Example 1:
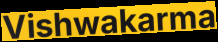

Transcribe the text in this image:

Vishwakarma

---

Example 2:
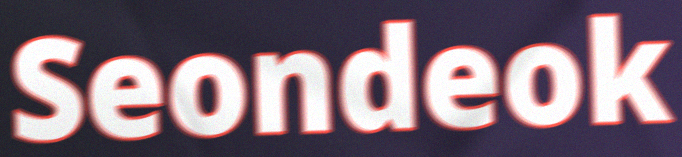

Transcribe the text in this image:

Seondeok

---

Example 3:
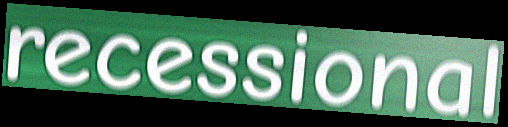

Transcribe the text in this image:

recessional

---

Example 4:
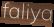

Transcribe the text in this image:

faliya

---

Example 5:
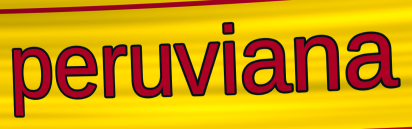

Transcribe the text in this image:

peruviana